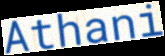
Athani